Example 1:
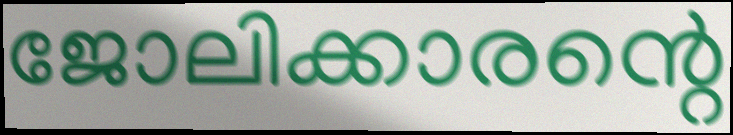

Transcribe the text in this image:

ജോലിക്കാരന്റെ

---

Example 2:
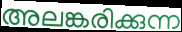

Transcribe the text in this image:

അലങ്കരിക്കുന്ന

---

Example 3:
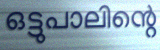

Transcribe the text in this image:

ഒട്ടുപാലിന്റെ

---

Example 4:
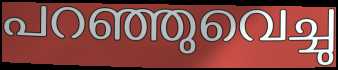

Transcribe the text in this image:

പറഞ്ഞുവെച്ചു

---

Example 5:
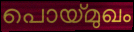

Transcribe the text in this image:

പൊയ്മുഖം